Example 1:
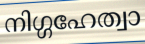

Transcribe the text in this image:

നിഗ്ഗഹേത്വാ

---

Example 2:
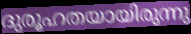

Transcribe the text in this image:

ദുരൂഹതയായിരുന്നു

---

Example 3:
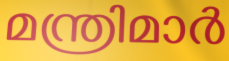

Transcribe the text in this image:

മന്ത്രിമാർ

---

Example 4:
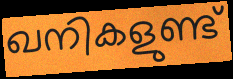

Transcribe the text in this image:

ഖനികളുണ്ട്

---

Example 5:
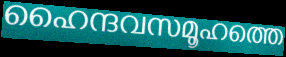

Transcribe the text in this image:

ഹൈന്ദവസമൂഹത്തെ